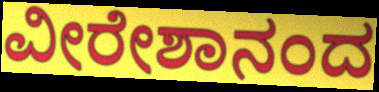
ವೀರೇಶಾನಂದ